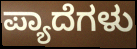
ಪ್ಯಾದೆಗಳು